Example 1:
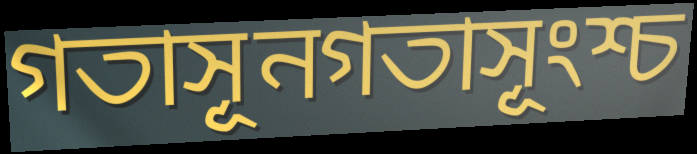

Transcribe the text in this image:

গতাসূনগতাসূংশ্চ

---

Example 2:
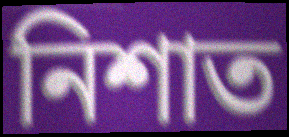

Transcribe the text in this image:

নিশাত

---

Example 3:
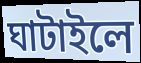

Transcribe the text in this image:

ঘাটাইলে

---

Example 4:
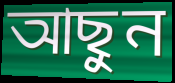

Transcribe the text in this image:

আছুন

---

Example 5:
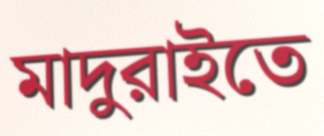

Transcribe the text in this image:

মাদুরাইতে